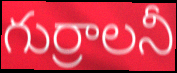
గుర్రాలనీ